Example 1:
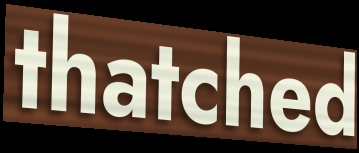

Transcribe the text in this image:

thatched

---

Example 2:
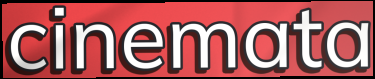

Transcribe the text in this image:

cinemata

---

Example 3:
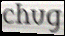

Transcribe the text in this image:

chug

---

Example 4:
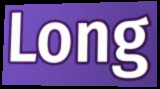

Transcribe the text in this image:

Long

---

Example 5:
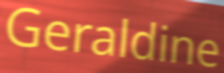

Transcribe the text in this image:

Geraldine